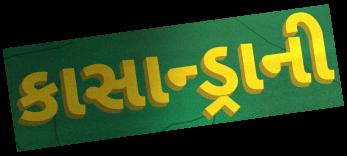
કાસાન્ડ્રાની